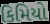
કિમિયો